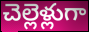
చెల్లెళ్లుగా